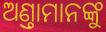
ଅଣ୍ତାମାନଙ୍କୁ